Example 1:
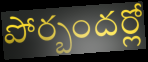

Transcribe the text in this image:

పోర్బందర్లో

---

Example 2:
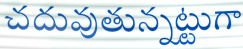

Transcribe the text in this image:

చదువుతున్నట్టుగా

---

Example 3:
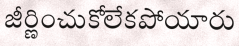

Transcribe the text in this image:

జీర్ణించుకోలేకపోయారు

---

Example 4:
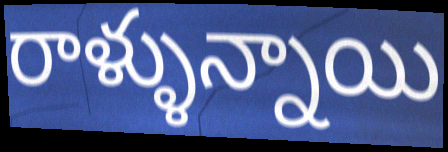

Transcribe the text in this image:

రాళ్ళున్నాయి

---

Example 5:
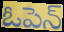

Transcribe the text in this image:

ఓపెన్